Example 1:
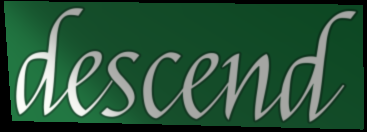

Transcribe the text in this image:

descend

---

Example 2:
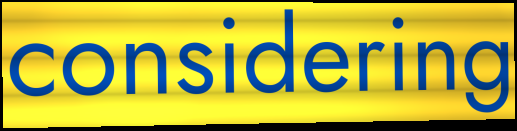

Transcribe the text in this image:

considering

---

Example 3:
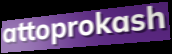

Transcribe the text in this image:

attoprokash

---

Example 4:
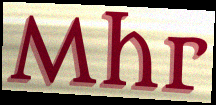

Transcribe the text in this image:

Mhr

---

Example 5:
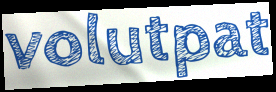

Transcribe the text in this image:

volutpat